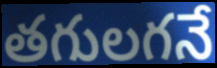
తగులగనే